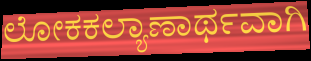
ಲೋಕಕಲ್ಯಾಣಾರ್ಥವಾಗಿ